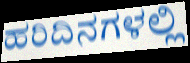
ಹರಿದಿನಗಳಲ್ಲಿ